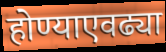
होण्याएवढ्या